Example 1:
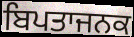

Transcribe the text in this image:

ਬਿਪਤਾਜਨਕ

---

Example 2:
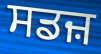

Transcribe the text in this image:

ਸਡਜ਼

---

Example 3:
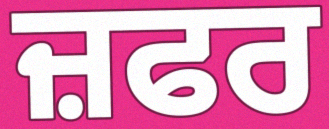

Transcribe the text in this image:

ਜ਼ਫਰ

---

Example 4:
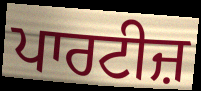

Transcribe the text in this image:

ਪਾਰਟੀਜ਼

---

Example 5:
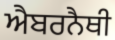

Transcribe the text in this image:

ਐਬਰਨੈਥੀ